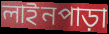
লাইনপাড়া